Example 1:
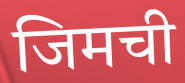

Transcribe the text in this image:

जिमची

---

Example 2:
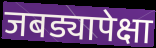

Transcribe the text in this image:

जबड्यापेक्षा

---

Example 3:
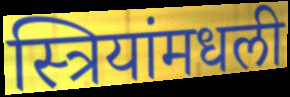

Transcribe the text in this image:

स्त्रियांमधली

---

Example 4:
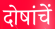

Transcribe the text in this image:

दोषांचें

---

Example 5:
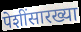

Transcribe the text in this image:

पेशींसारख्या